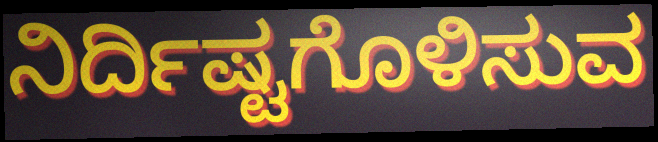
ನಿರ್ದಿಷ್ಟಗೊಳಿಸುವ